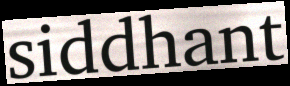
siddhant